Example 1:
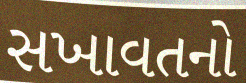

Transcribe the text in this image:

સખાવતનો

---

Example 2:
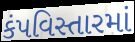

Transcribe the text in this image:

કંપવિસ્તારમાં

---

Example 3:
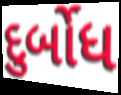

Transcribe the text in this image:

દુર્બોધ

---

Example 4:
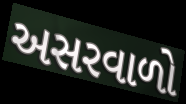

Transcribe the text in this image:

અસરવાળો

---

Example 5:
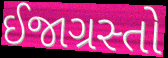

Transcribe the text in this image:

ઈજાગ્રસ્તો